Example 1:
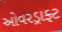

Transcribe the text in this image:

ઓવરડ્રાફ્ટ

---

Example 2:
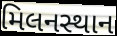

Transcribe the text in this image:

મિલનસ્થાન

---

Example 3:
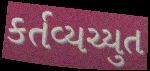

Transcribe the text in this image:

કર્તવ્યચ્યુત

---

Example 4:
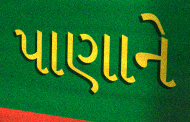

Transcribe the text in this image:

પાણાને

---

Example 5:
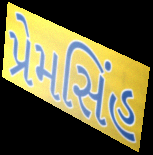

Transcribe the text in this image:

પ્રેમસિંહ